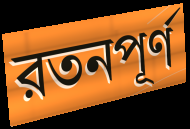
রতনপূর্ণ